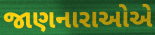
જાણનારાઓએ